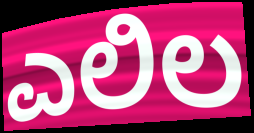
ಎಲಿಲ